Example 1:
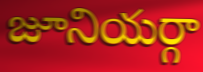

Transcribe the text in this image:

జూనియర్గా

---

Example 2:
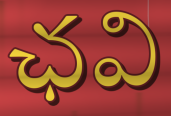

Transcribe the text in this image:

ఛవి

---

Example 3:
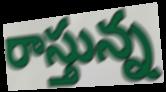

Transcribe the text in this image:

రాస్తున్న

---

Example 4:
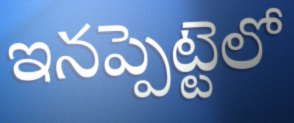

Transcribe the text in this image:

ఇనప్పెట్టెలో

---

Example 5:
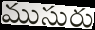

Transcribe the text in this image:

ముసురు